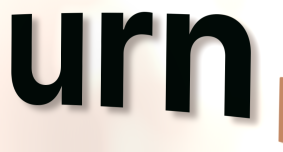
urn